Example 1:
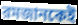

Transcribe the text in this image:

রমজানকেই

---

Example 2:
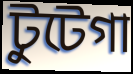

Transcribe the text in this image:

টুটেগা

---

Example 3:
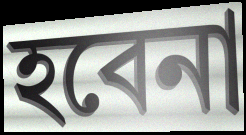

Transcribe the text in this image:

হবেনা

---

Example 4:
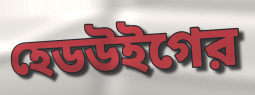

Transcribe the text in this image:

হেডউইগের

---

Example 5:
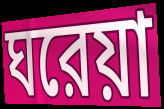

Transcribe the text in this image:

ঘরেয়া